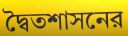
দ্বৈতশাসনের